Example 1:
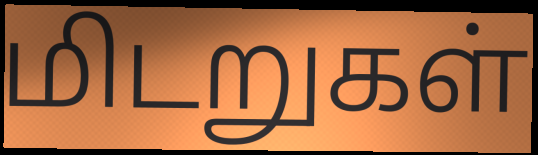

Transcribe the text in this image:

மிடறுகள்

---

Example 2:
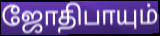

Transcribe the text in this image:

ஜோதிபாயும்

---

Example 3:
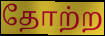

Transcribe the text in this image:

தோற்ற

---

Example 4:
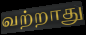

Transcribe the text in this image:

வற்றாது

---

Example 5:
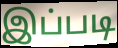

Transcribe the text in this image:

இப்படி